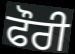
ਫੌਰੀ